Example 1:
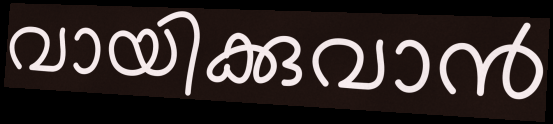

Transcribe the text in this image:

വായിക്കുവാൻ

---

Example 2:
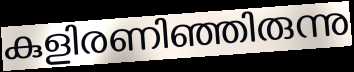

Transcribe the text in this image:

കുളിരണിഞ്ഞിരുന്നു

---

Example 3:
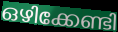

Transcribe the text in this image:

ഒഴിക്കേണ്ടി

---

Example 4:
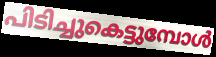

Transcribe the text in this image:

പിടിച്ചുകെട്ടുമ്പോൾ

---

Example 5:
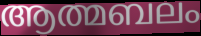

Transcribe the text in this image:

ആത്മബലം